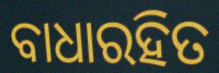
ବାଧାରହିତ